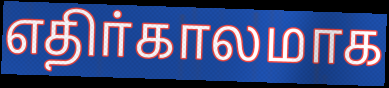
எதிர்காலமாக